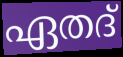
ഏതദ്